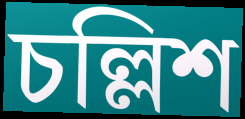
চল্লিশ